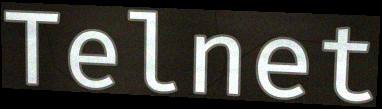
Telnet